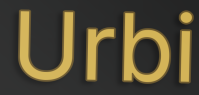
Urbi